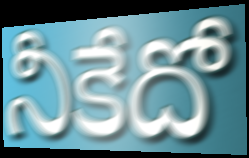
నీకేదో